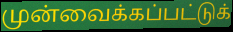
முன்வைக்கப்பட்டுக்